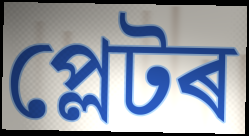
প্লেটৰ